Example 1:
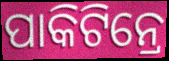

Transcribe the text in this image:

ପାକିଟିନ୍ରେ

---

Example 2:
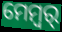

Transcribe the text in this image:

ମେମ୍ବର୍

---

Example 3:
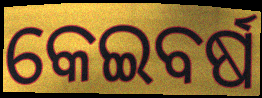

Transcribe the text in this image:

କେଇବର୍ଷ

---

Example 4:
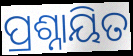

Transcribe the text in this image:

ପ୍ରଶ୍ନାୟିତ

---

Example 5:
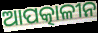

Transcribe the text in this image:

ଆପତ୍କାଳୀନ